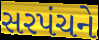
સરપંચને